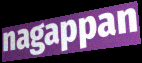
nagappan